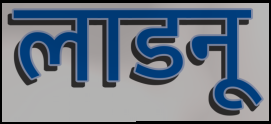
लाडनू